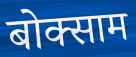
बोक्साम